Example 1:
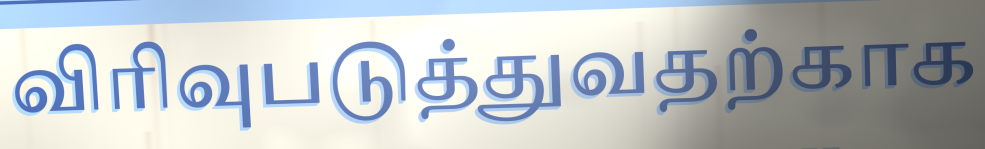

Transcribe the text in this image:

விரிவுபடுத்துவதற்காக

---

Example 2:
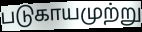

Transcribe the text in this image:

படுகாயமுற்று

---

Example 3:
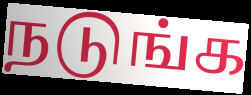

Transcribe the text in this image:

நடுங்க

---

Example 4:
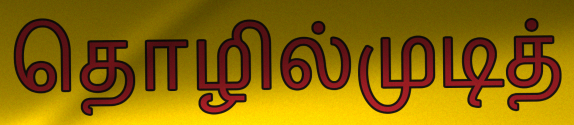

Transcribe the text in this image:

தொழில்முடித்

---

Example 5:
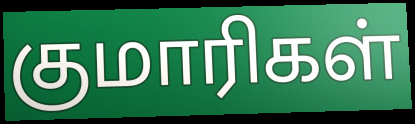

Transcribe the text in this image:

குமாரிகள்